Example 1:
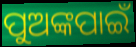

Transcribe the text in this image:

ପୁଅଙ୍କପାଇଁ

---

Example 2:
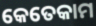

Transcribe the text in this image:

କେତେକାମ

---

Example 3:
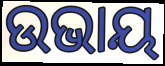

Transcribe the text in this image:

ଉଭାୟ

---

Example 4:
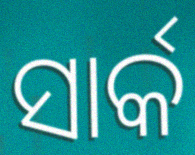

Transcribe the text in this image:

ସାର୍କ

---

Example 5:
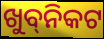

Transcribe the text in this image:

ଖୁବ୍‌ନିକଟ